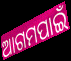
ଆଗମପାଇଁ